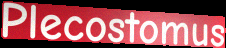
Plecostomus